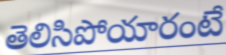
తెలిసిపోయారంటే